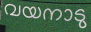
വയനാടു